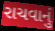
રાચવાનું